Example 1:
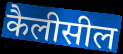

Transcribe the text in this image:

कैलीसील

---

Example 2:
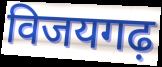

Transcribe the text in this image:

विजयगढ़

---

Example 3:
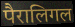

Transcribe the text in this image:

पैरालिगल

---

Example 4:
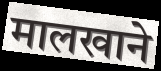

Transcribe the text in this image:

मालखाने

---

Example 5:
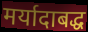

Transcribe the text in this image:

मर्यादाबद्ध